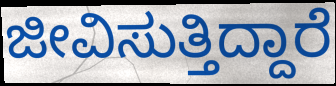
ಜೀವಿಸುತ್ತಿದ್ದಾರೆ